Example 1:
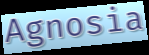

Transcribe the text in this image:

Agnosia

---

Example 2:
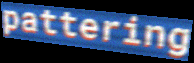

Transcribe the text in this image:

pattering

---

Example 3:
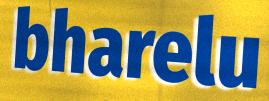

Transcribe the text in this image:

bharelu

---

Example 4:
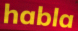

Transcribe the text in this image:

habla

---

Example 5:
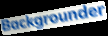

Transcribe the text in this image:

Backgrounder